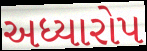
અધ્યારોપ